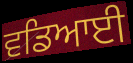
ਵਡਿਆਈ